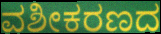
ವಶೀಕರಣದ